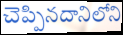
చెప్పినదానిలోని